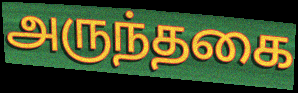
அருந்தகை